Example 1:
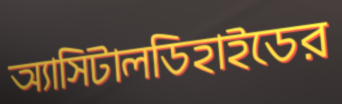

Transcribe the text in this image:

অ্যাসিটালডিহাইডের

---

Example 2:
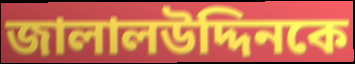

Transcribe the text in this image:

জালালউদ্দিনকে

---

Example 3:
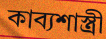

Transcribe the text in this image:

কাব্যশাস্ত্রী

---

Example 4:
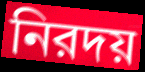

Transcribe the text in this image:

নিরদয়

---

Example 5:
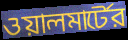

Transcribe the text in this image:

ওয়ালমার্টের